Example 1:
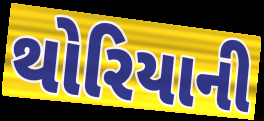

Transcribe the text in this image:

થોરિયાની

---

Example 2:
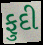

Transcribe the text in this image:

ફુદી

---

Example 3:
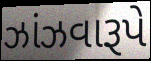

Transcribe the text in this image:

ઝાંઝવારૂપે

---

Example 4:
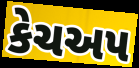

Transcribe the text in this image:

કેચઅપ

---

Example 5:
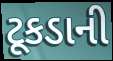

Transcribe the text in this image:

ટૂકડાની